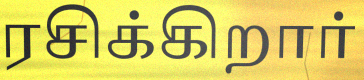
ரசிக்கிறார்